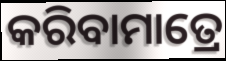
କରିବାମାତ୍ରେ